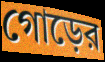
গোড়ের